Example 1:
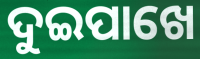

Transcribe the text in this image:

ଦୁଇପାଖେ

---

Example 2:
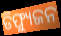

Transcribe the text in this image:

ଡିଫ୍ୟୁଜନ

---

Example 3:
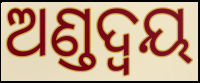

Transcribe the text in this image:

ଅଣ୍ଡଦ୍ୱୟ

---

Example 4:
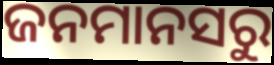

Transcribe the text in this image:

ଜନମାନସରୁ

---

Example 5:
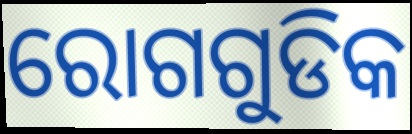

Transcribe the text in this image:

ରୋଗଗୁଡିକ